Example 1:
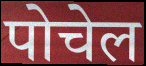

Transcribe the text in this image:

पोचेल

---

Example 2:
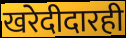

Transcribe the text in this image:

खरेदीदारही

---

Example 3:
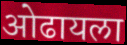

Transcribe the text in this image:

ओढायला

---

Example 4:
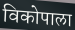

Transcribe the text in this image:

विकोपाला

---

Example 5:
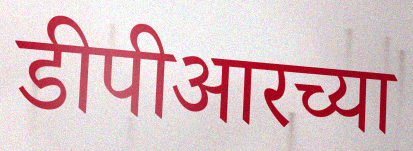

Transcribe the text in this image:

डीपीआरच्या